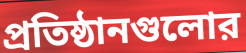
প্রতিষ্ঠানগুলোর